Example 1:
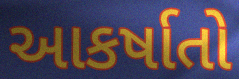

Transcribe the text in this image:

આકર્ષાતો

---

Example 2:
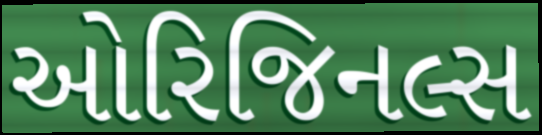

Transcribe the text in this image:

ઓરિજિનલ્સ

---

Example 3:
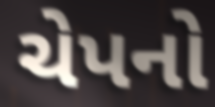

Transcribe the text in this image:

ચેપનો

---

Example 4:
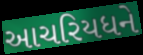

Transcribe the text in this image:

આચરિયધને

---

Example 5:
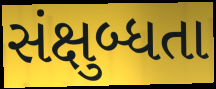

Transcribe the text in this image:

સંક્ષુબ્ધતા